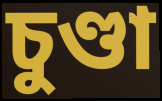
চুণ্ডা